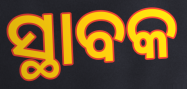
ସ୍ଥାବକ